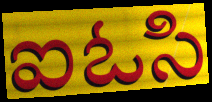
ఐఓసి